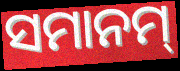
ସମାନମ୍